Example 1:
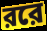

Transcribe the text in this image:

ররে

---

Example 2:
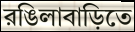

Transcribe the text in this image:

রঙিলাবাড়িতে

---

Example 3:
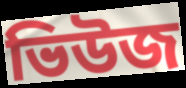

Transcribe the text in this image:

ভিউজ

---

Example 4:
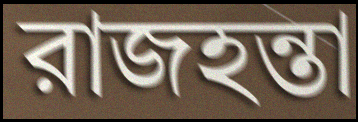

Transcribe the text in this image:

রাজহন্তা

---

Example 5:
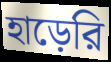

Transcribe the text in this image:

হাড়েরি